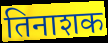
तिनाशक